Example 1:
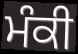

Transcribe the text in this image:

ਮੰਕੀ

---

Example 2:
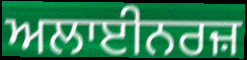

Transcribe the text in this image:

ਅਲਾਈਨਰਜ਼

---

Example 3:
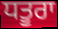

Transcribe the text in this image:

ਧਤੂਰਾ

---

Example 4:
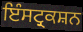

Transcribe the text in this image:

ਇੰਸਟ੍ਰਕਸ਼ਨ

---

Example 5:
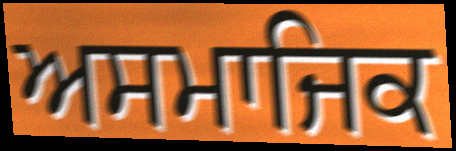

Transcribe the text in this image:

ਅਸਮਾਜਿਕ